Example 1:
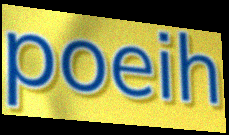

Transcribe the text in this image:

poeih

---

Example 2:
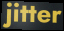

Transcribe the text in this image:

jitter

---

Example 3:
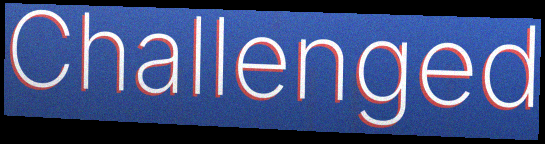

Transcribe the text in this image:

Challenged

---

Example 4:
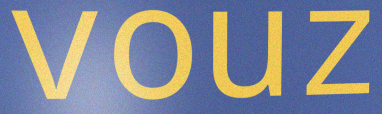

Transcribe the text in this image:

vouz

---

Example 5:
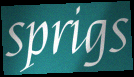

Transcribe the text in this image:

sprigs